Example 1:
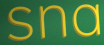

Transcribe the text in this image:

sna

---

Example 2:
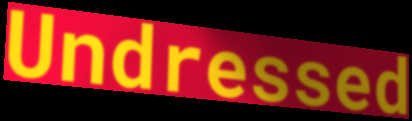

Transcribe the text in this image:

Undressed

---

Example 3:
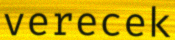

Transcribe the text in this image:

verecek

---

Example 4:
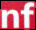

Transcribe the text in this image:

nf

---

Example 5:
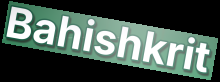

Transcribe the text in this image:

Bahishkrit